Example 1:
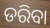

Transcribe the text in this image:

ଡରିବା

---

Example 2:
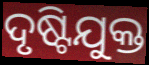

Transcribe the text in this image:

ଦୃଷ୍ଟିଯୁକ୍ତ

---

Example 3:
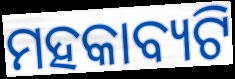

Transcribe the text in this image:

ମହକାବ୍ୟଟି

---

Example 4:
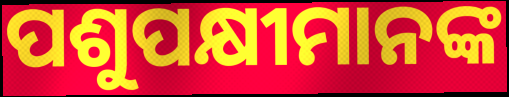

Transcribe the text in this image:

ପଶୁପକ୍ଷୀମାନଙ୍କ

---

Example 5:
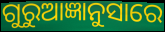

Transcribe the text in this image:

ଗୁରୁଆଜ୍ଞାନୁସାରେ